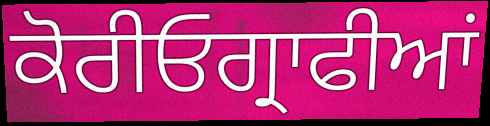
ਕੋਰੀਓਗ੍ਰਾਫੀਆਂ